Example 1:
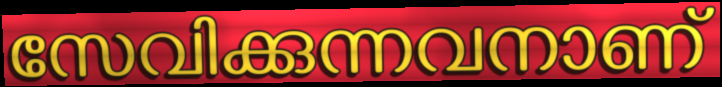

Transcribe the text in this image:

സേവിക്കുന്നവനാണ്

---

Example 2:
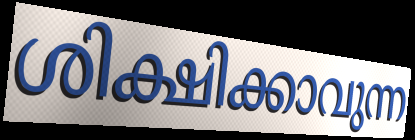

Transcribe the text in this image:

ശിക്ഷിക്കാവുന്ന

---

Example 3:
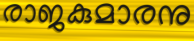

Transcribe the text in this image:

രാജകുമാരനു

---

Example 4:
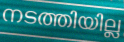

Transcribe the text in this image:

നടത്തിയില്ല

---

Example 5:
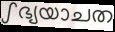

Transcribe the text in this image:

ഽഭ്യയാചത